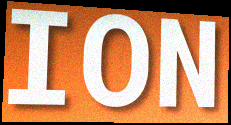
ION